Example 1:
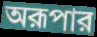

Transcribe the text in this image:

অরূপার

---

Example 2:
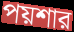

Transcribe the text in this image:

পয়শার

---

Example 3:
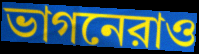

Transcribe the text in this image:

ভাগনেরাও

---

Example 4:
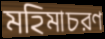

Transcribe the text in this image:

মহিমাচরণ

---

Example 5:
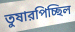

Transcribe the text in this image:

তুষারপিচ্ছিল